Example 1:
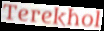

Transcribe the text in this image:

Terekhol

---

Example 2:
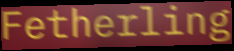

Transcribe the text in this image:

Fetherling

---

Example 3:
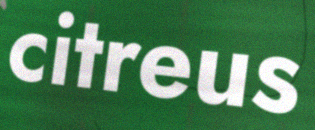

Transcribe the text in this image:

citreus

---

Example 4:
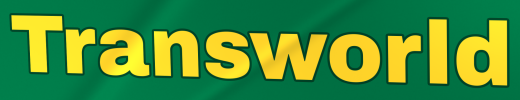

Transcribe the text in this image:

Transworld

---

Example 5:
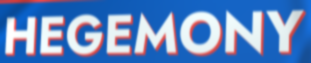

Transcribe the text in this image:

HEGEMONY